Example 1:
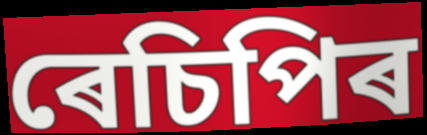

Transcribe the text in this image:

ৰেচিপিৰ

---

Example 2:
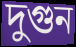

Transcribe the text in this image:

দুগুন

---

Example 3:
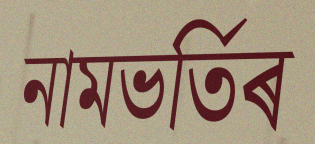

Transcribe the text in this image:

নামভৰ্তিৰ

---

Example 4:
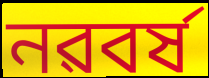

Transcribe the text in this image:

নৱবৰ্ষ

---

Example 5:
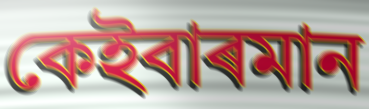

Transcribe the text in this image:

কেইবাৰমান